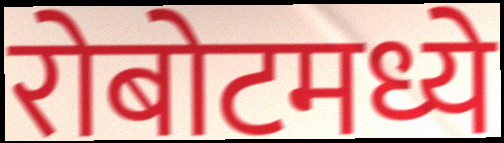
रोबोटमध्ये